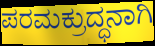
ಪರಮಕ್ರುದ್ಧನಾಗಿ